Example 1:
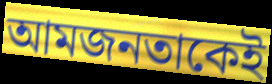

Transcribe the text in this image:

আমজনতাকেই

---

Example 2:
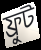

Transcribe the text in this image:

ফ্রুট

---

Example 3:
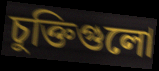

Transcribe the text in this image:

চুক্তিগুলো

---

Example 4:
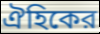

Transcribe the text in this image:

ঐহিকের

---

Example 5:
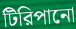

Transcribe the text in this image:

টিরিপানো